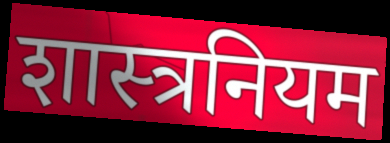
शास्त्रनियम